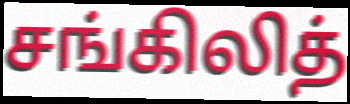
சங்கிலித்